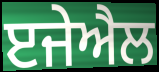
ੲਜੇਐਲ